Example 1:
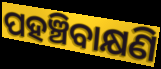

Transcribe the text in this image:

ପହଞ୍ଚିବାକ୍ଷଣି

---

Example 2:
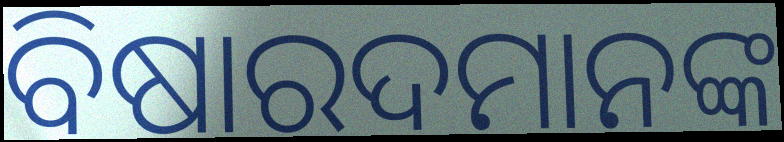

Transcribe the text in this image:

ବିଷାରଦମାନଙ୍କ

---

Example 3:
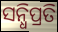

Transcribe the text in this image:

ସନ୍ଧିପ୍ରତି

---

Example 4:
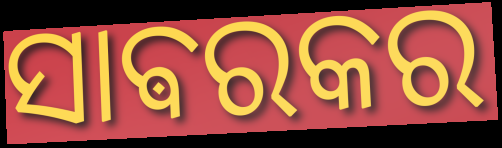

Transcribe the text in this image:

ସାଵରକର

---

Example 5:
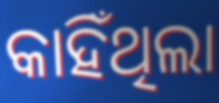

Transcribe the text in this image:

କାହିଁଥିଲା